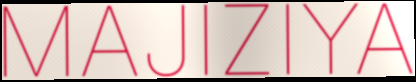
MAJIZIYA